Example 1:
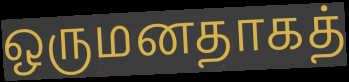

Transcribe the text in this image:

ஒருமனதாகத்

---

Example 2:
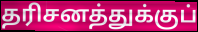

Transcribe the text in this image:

தரிசனத்துக்குப்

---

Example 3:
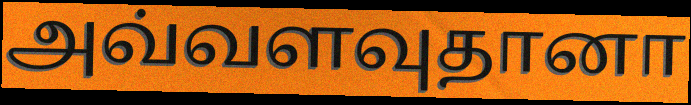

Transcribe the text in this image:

அவ்வளவுதானா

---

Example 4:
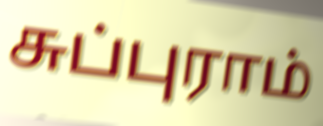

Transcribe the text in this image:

சுப்புராம்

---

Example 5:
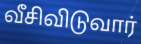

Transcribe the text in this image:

வீசிவிடுவார்